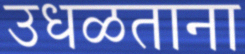
उधळताना